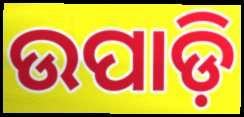
ଉପାଡ଼ି